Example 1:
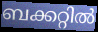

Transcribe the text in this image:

ബക്കറ്റിൽ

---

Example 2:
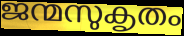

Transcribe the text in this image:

ജന്മസുകൃതം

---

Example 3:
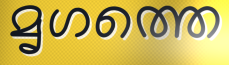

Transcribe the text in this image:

മൃഗത്തെ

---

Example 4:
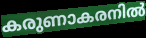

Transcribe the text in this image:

കരുണാകരനിൽ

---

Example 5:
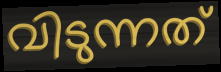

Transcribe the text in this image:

വിടുന്നത്